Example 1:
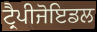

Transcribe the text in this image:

ਟ੍ਰੈਪੀਜੋਇਡਲ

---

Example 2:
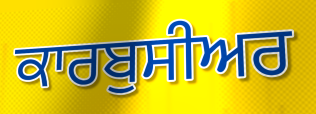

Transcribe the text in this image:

ਕਾਰਬੁਸੀਅਰ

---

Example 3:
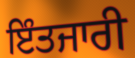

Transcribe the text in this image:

ਇੰਤਜਾਰੀ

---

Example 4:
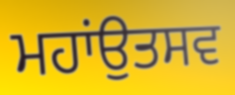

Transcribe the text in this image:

ਮਹਾਂਉਤਸਵ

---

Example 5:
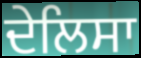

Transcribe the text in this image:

ਦੇਲਿਸਾ